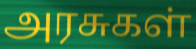
அரசுகள்